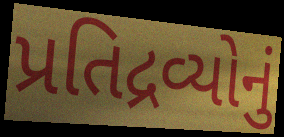
પ્રતિદ્રવ્યોનું